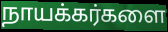
நாயக்கர்களை